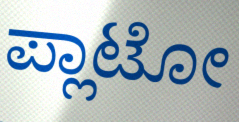
ಪ್ಲಾಟೋ